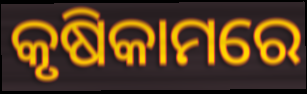
କୃଷିକାମରେ